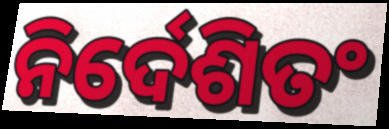
ନିର୍ଦେଶିତଂ